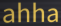
ahha